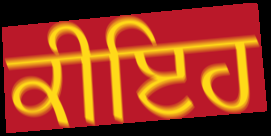
ਕੀਇਹ